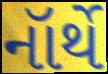
નૉર્થે